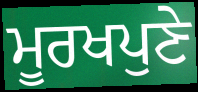
ਮੂਰਖਪੁਣੇ